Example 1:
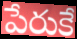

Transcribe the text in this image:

పేరుకే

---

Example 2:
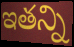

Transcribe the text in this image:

ఇతన్ని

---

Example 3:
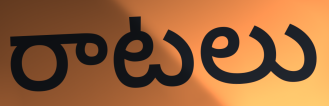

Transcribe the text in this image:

రాటలు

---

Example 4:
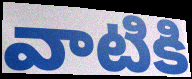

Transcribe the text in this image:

వాటికి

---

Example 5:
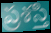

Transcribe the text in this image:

ప్రశస్తి